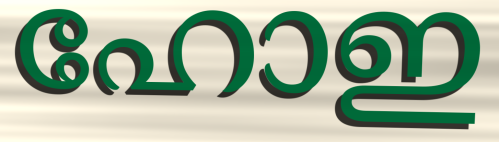
ഹോഇ